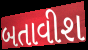
બતાવીશ